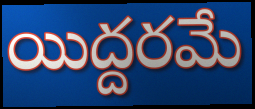
యిద్దరమే